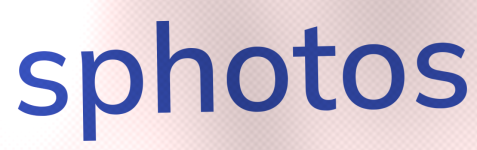
sphotos